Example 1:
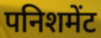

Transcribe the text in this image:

पनिशमेंट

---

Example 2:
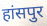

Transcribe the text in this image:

हांसपुर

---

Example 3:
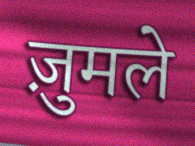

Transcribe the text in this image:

ज़ुमले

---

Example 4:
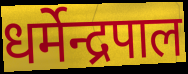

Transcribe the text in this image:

धर्मेन्द्रपाल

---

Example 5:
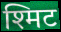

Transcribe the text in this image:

श्मिट